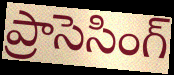
ప్రాసెసింగ్